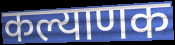
कल्याणक